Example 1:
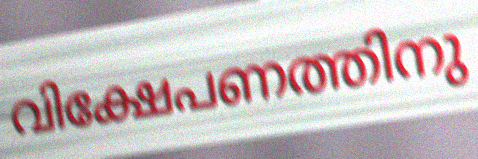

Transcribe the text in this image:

വിക്ഷേപണത്തിനു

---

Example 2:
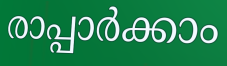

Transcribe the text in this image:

രാപ്പാർക്കാം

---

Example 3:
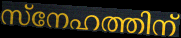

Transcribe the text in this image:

സ്നേഹത്തിന്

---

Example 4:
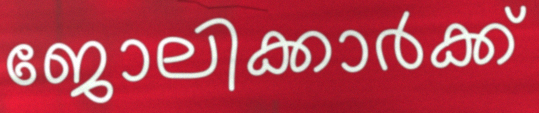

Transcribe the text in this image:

ജോലിക്കാർക്ക്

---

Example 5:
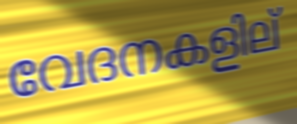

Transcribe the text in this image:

വേദനകളില്